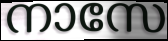
നാസേ